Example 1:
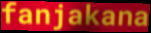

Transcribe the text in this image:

fanjakana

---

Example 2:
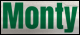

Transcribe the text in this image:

Monty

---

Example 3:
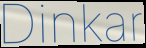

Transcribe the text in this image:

Dinkar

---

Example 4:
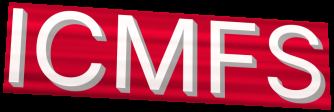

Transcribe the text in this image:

ICMFS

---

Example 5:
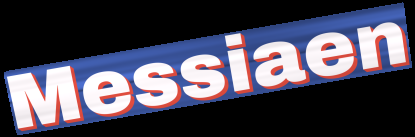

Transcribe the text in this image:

Messiaen